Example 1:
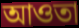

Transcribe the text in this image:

আওতা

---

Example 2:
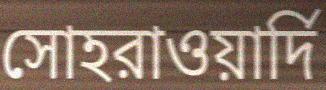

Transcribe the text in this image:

সোহরাওয়ার্দি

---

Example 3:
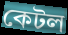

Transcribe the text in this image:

কেটল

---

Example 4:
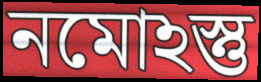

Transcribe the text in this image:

নমোঽস্তু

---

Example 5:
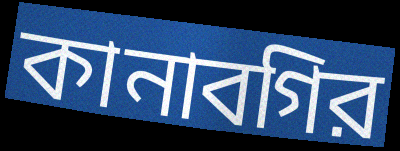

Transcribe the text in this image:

কানাবগির